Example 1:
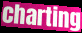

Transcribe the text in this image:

charting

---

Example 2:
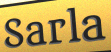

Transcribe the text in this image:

Sarla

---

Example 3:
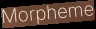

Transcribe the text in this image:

Morpheme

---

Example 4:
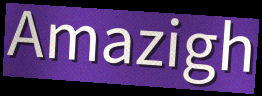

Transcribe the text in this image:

Amazigh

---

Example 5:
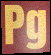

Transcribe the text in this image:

Pg